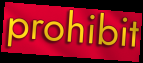
prohibit